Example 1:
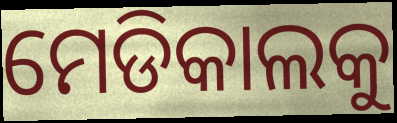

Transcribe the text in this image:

ମେଡିକାଲକୁ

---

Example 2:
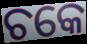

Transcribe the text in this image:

ଚକେ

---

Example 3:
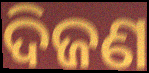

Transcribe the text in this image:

ଦିଜଣ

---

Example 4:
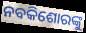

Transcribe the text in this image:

ନବକିଶୋରଙ୍କୁ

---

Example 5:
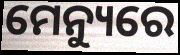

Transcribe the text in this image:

ମେନ୍ୟୁରେ